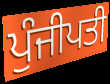
ਪੁੰਜੀਪਤੀ